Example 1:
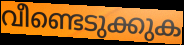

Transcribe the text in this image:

വീണ്ടെടുക്കുക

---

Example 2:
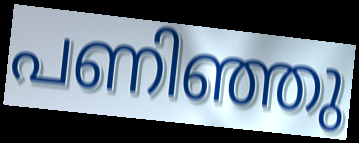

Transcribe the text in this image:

പണിഞ്ഞു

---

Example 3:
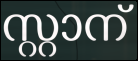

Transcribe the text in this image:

സ്റ്റാന്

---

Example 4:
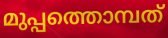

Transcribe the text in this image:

മുപ്പത്തൊമ്പത്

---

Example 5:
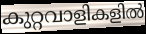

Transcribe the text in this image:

കുറ്റവാളികളിൽ